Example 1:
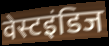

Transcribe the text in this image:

वेस्टइंडिज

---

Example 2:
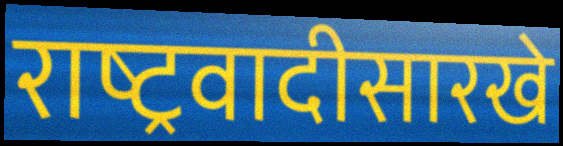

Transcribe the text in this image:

राष्ट्रवादीसारखे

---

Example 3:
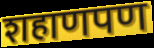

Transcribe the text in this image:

शहाणपण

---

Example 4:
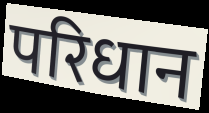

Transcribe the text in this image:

परिधान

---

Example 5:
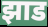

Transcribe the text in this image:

झाड